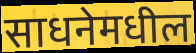
साधनेमधील